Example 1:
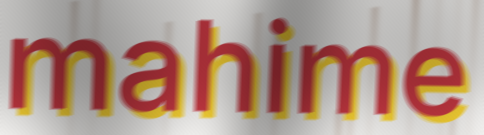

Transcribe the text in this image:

mahime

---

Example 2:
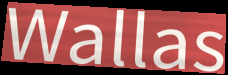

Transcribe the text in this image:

Wallas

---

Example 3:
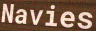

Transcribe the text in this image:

Navies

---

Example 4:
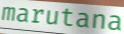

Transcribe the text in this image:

marutana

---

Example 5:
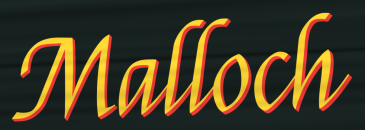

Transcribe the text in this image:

Malloch